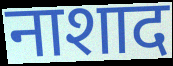
नाशाद